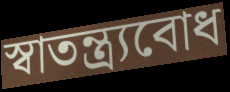
স্বাতন্ত্র্যবোধ